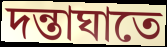
দন্তাঘাতে